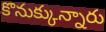
కొనుక్కున్నారు